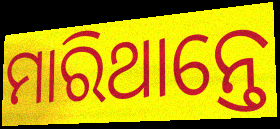
ମାରିଥାନ୍ତେ